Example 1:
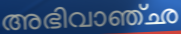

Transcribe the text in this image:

അഭിവാഞ്ഛ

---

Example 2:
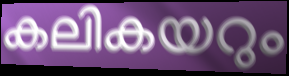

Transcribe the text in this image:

കലികയറും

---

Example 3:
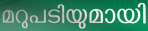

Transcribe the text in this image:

മറുപടിയുമായി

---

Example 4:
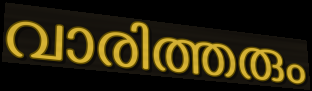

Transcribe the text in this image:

വാരിത്തരും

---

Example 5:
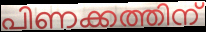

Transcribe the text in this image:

പിണക്കത്തിന്